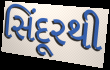
સિંદૂરથી